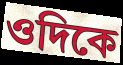
ওদিকে